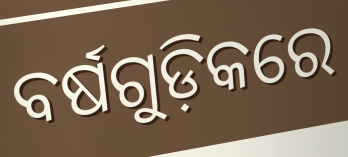
ବର୍ଷଗୁଡ଼ିକରେ